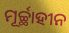
ମୂର୍ଚ୍ଛାହୀନ